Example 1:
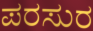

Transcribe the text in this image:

ಪರಸುರ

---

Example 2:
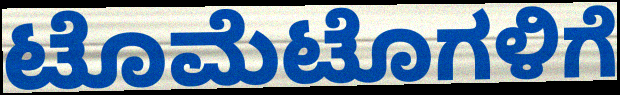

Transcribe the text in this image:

ಟೊಮೆಟೊಗಳಿಗೆ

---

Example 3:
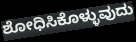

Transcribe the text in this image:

ಶೋಧಿಸಿಕೊಳ್ಳುವುದು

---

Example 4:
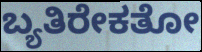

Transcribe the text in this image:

ಬ್ಯತಿರೇಕತೋ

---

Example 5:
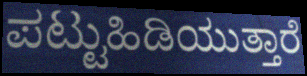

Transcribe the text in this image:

ಪಟ್ಟುಹಿಡಿಯುತ್ತಾರೆ